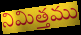
నిమిత్తము